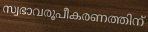
സ്വഭാവരൂപീകരണത്തിന്